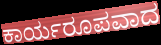
ಕಾರ್ಯರೂಪವಾದ